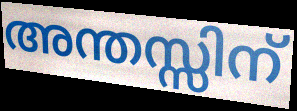
അന്തസ്സിന്